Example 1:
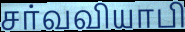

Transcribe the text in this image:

சர்வவியாபி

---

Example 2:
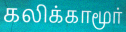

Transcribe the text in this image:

கலிக்காமூர்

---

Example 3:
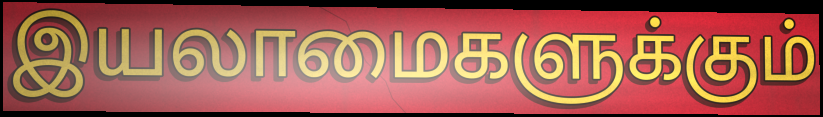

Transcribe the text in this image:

இயலாமைகளுக்கும்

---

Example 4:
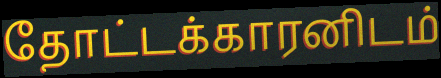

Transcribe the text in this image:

தோட்டக்காரனிடம்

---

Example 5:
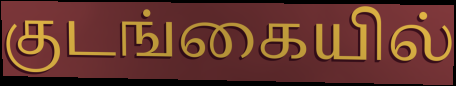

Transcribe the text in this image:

குடங்கையில்